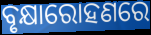
ବୃକ୍ଷାରୋହଣରେ